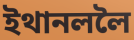
ইথানললৈ